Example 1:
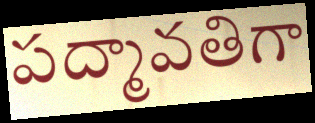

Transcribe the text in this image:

పద్మావతిగా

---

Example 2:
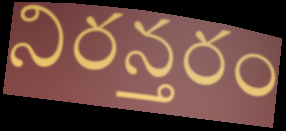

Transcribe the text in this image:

నిరన్తరం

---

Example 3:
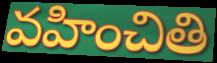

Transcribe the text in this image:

వహించితి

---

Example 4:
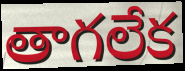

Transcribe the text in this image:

తాగలేక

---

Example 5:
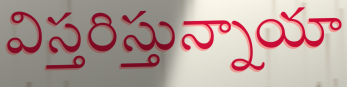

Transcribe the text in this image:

విస్తరిస్తున్నాయా